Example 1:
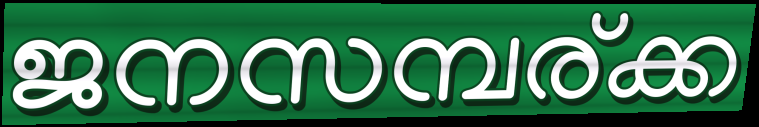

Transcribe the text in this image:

ജനസമ്പര്ക്ക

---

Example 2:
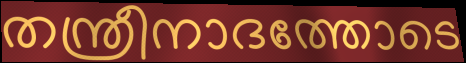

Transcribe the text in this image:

തന്ത്രീനാദത്തോടെ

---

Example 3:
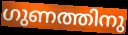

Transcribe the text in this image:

ഗുണത്തിനു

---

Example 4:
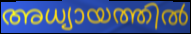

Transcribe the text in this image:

അധ്യായത്തിൽ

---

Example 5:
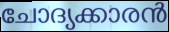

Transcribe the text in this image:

ചോദ്യക്കാരൻ